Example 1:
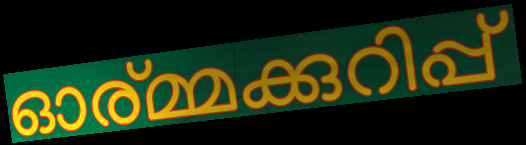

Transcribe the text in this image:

ഓര്മ്മക്കുറിപ്പ്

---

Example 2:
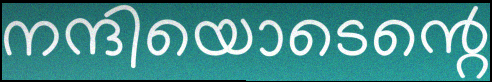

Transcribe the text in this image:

നന്ദിയൊടെന്റെ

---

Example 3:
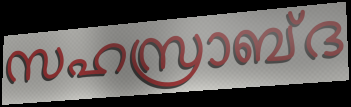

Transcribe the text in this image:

സഹസ്രാബ്ദ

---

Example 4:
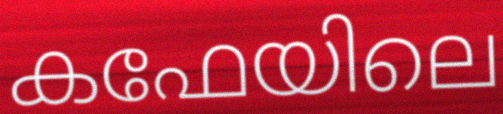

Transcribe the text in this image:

കഫേയിലെ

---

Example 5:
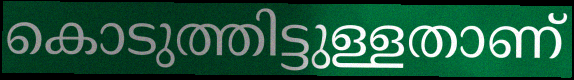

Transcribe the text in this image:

കൊടുത്തിട്ടുള്ളതാണ്